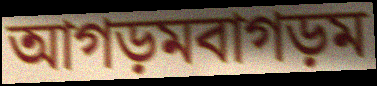
আগড়মবাগড়ম